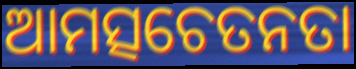
ଆମତ୍ସଚେତନତା